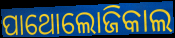
ପାଥୋଲୋଜିକାଲ